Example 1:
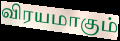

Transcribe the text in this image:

விரயமாகும்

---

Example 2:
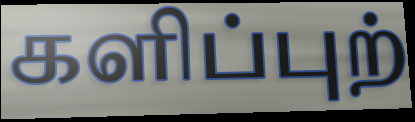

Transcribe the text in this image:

களிப்புற்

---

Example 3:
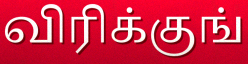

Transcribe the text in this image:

விரிக்குங்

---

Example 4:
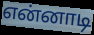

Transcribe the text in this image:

என்னாடி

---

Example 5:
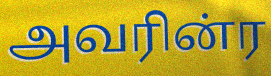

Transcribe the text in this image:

அவரின்ர